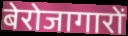
बेरोजागारों